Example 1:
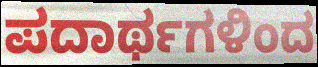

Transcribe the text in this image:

ಪದಾರ್ಥಗಳಿಂದ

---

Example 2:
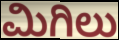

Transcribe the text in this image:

ಮಿಗಿಲು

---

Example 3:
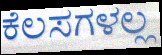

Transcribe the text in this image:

ಕೆಲಸಗಳಲ್ಲ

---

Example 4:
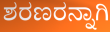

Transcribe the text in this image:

ಶರಣರನ್ನಾಗಿ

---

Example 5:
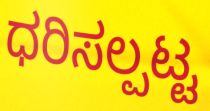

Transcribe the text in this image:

ಧರಿಸಲ್ಪಟ್ಟ